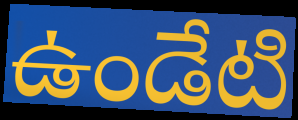
ఉండేటి